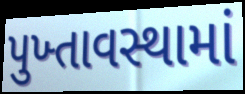
પુખ્તાવસ્થામાં